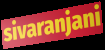
sivaranjani